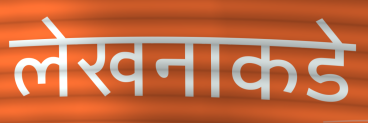
लेखनाकडे